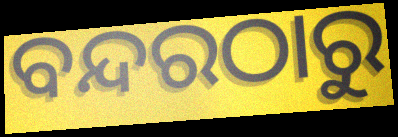
ବନ୍ଦରଠାରୁ